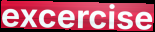
excercise